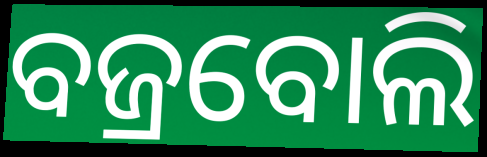
ବଜ୍ରବୋଲି